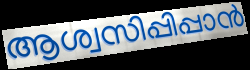
ആശ്വസിപ്പിപ്പാൻ